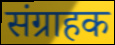
संग्राहक